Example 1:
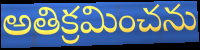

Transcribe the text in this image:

అతిక్రమించను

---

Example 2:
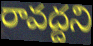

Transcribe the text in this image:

రావద్దని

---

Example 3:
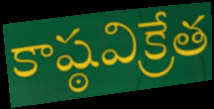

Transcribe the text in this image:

కాష్ఠవిక్రేత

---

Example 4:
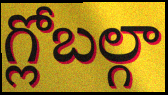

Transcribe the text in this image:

గ్లోబల్గా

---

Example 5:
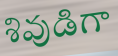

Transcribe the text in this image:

శివుడిగా